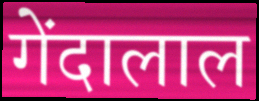
गेंदालाल